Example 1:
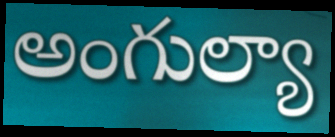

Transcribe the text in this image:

అంగుల్యా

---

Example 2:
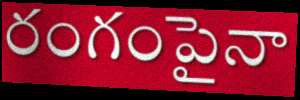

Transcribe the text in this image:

రంగంపైనా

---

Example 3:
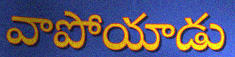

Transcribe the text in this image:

వాపోయాడు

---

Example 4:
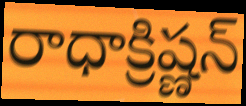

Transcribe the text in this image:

రాధాక్రిష్ణన్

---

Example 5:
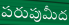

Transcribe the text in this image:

పరుపుమీద